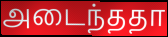
அடைந்ததா